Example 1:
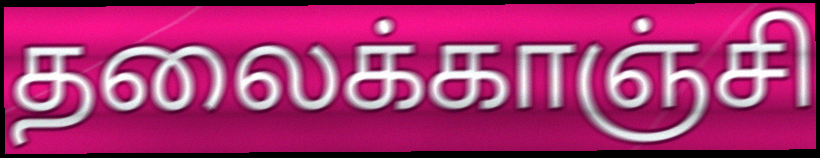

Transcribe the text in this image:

தலைக்காஞ்சி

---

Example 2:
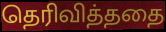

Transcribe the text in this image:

தெரிவித்ததை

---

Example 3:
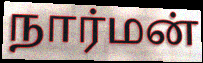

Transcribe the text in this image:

நார்மன்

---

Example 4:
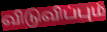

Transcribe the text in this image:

விடுவிப்பும்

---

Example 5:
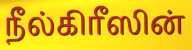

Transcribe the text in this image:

நீல்கிரீஸின்